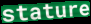
stature